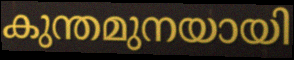
കുന്തമുനയായി